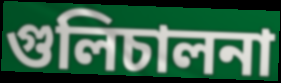
গুলিচালনা